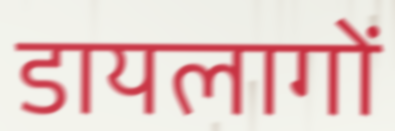
डायलागों